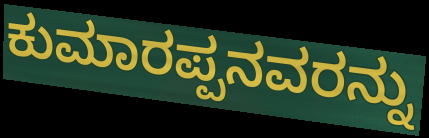
ಕುಮಾರಪ್ಪನವರನ್ನು